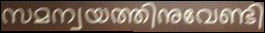
സമന്വയത്തിനുവേണ്ടി